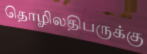
தொழிலதிபருக்கு